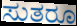
ಸುತರೂ